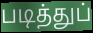
படித்துப்